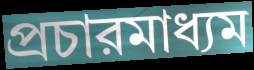
প্রচারমাধ্যম